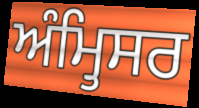
ਅੰਮ੍ਤਿਸਰ